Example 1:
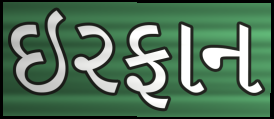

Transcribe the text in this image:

ઇરફાન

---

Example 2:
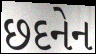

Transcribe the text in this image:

છદનેન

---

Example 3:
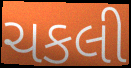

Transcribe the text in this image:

ચકલી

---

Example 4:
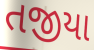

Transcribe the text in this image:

તજીયા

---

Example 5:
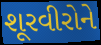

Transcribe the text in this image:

શૂરવીરોને